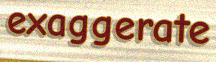
exaggerate